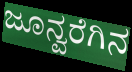
ಜೂನ್ವರೆಗಿನ